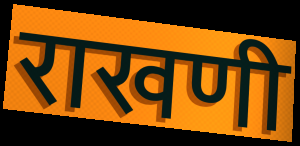
राखणी